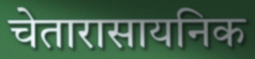
चेतारासायनिक